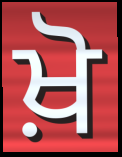
ਖ਼ੋ